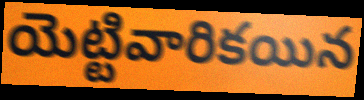
యెట్టివారికయిన